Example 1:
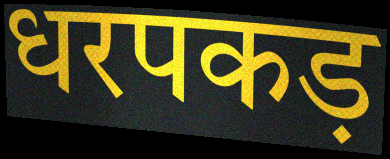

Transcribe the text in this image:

धरपकड़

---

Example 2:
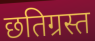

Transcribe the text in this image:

छतिग्रस्त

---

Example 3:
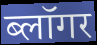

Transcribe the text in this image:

ब्लॉगर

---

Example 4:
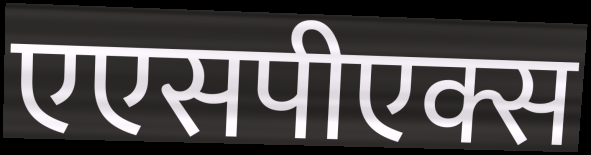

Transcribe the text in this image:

एएसपीएक्स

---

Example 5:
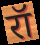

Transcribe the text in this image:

रॉ